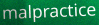
malpractice